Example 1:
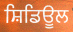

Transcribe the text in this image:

ਸ਼ਿਡਿਊਲ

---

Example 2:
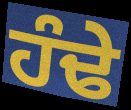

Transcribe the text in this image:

ਹੰਢੇ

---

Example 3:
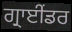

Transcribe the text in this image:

ਗ੍ਰਾਈਂਡਰ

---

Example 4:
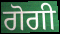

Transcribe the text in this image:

ਗੋਗੀ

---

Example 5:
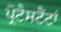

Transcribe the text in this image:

ਪ੍ਰੋਟੈਸਟੈਂਟਾਂ